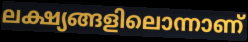
ലക്ഷ്യങ്ങളിലൊന്നാണ്